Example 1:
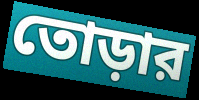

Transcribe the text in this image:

তোড়ার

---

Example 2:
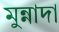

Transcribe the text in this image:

মুন্নাদা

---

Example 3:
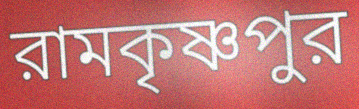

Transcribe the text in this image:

রামকৃষ্ণপুর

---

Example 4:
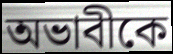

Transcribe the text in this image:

অভাবীকে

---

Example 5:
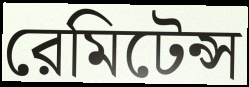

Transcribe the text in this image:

রেমিটেন্স